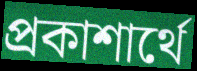
প্রকাশার্থে